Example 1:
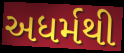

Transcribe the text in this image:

અધર્મથી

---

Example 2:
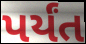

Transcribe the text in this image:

પર્યંત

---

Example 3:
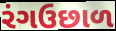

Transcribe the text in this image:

રંગઉછાળ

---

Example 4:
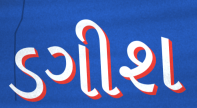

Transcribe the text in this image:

ડગીશ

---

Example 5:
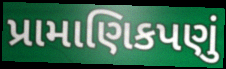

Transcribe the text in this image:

પ્રામાણિકપણું